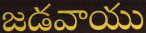
జడవాయు